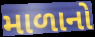
માળાનો